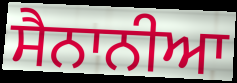
ਸੈਨਾਨੀਆ